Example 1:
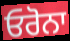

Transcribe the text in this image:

ਓਰੋਨਾ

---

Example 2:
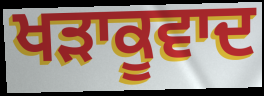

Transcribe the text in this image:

ਖੜਾਕੂਵਾਦ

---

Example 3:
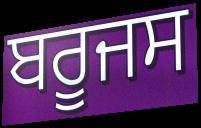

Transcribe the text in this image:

ਬਰੂਜਸ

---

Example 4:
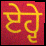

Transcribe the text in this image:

ਏਹ੍ਦੇ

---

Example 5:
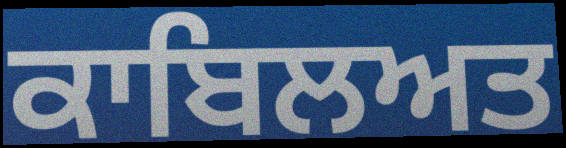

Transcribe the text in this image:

ਕਾਬਿਲਅਤ